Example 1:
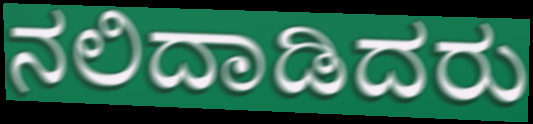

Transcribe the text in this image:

ನಲಿದಾಡಿದರು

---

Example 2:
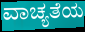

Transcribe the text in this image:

ವಾಚ್ಯತೆಯ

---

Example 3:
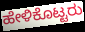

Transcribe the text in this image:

ಹೇಳಿಕೊಟ್ಟರು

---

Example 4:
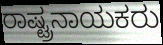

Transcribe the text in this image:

ರಾಷ್ಟ್ರನಾಯಕರು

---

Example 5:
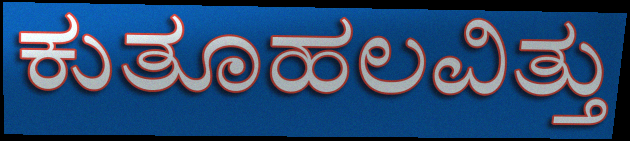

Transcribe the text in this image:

ಕುತೂಹಲವಿತ್ತು